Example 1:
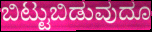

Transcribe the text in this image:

ಬಿಟ್ಟುಬಿಡುವುದೂ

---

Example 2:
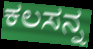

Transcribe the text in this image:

ಕಲಸನ್ನ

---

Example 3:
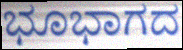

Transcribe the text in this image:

ಭೂಭಾಗದ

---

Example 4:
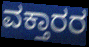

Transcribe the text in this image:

ವಕ್ತಾರರ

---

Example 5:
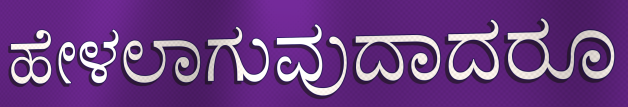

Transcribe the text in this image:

ಹೇಳಲಾಗುವುದಾದರೂ